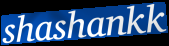
shashankk